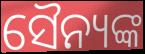
ସୈନ୍ୟଙ୍କ